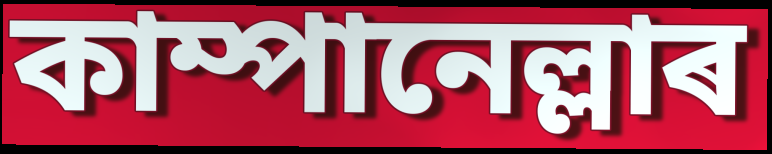
কাম্পানেল্লাৰ